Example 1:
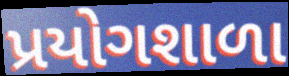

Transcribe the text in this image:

પ્રયોગશાળા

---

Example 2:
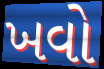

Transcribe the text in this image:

ખવો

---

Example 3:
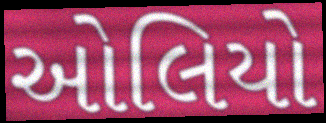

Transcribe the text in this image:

ઓલિયો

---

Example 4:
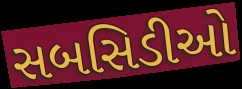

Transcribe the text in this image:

સબસિડીઓ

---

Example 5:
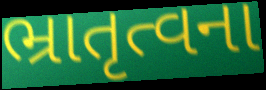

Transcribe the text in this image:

ભ્રાતૃત્વના